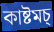
কাষ্টমচ্